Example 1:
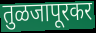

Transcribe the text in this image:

तुळजापूरकर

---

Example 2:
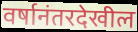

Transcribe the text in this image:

वर्षानंतरदेखील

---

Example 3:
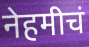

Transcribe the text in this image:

नेहमीचं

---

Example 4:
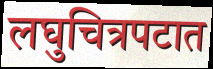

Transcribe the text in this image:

लघुचित्रपटात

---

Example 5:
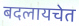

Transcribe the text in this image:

बदलायचेत